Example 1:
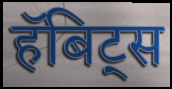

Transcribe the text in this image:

हॅबिट्स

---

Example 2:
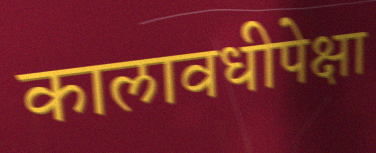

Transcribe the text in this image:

कालावधीपेक्षा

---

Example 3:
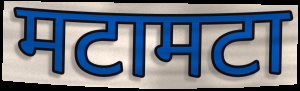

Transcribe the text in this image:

मटामटा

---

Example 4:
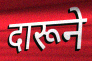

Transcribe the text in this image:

दारूने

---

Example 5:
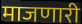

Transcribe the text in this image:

माजणारी